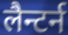
लैन्टर्न